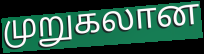
முறுகலான